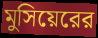
মুসিয়েরের